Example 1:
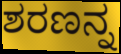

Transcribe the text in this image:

ಶರಣನ್ನ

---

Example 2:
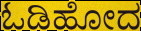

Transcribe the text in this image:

ಓಡಿಹೋದ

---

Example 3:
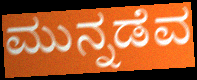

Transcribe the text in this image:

ಮುನ್ನಡೆವ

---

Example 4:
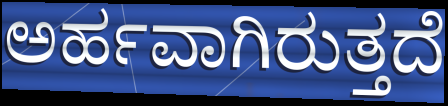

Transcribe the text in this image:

ಅರ್ಹವಾಗಿರುತ್ತದೆ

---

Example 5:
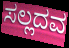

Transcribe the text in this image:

ಸಲ್ಲದವ